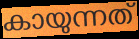
കായുന്നത്